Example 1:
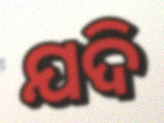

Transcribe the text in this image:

ଯଦି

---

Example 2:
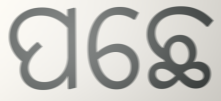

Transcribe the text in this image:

ପଛେ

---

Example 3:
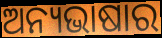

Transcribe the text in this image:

ଅନ୍ୟଭାଷାର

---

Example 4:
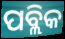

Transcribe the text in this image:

ପବ୍ଲିକ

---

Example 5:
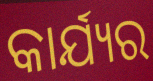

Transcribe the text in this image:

କାର୍ଯ୍ୟର